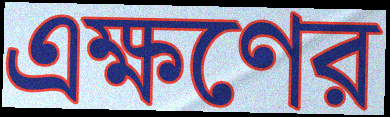
এক্ষণের